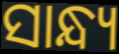
ସାନ୍ଧ୍ୟ